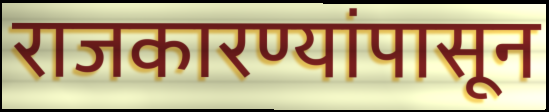
राजकारण्यांपासून